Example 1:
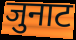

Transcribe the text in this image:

जुनाट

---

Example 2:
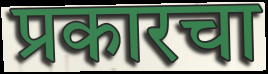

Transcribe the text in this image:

प्रकारचा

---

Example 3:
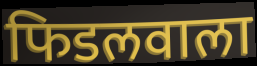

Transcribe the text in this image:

फिडलवाला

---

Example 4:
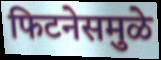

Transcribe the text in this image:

फिटनेसमुळे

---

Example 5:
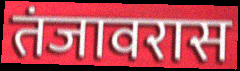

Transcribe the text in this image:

तंजावरास